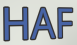
HAF